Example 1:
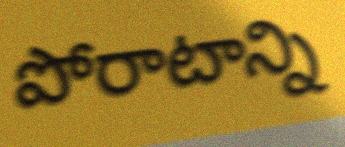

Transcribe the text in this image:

పోరాటాన్ని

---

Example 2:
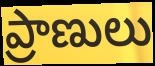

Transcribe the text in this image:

ప్రాణులు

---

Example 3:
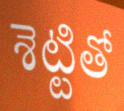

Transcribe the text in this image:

శెట్టితో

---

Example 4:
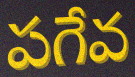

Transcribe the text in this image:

పగేవ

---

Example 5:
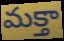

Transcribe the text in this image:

మక్తా